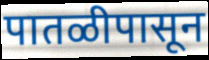
पातळीपासून